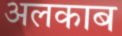
अलकाब